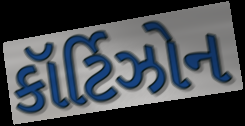
કૉર્ટિઝોન